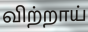
விற்றாய்